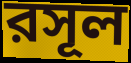
রসূল